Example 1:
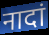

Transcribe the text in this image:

नादां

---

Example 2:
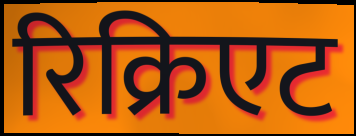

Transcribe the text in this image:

रिक्रिएट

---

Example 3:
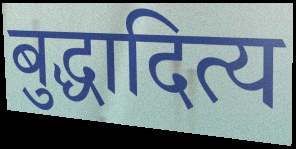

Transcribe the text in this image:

बुद्धादित्य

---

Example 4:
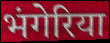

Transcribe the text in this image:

भंगेरिया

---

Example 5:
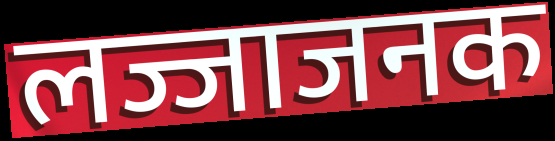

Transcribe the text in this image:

लज्जाजनक